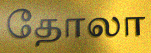
தோலா